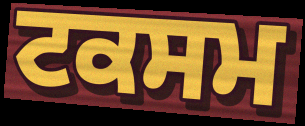
ਟਕਸਮ